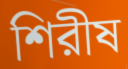
শিরীষ